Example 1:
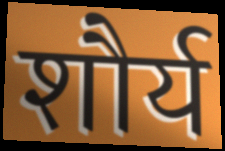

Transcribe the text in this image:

शौर्य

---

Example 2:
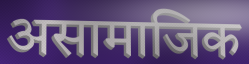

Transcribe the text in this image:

असामाजिक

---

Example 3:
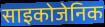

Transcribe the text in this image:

साइकोजेनिक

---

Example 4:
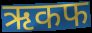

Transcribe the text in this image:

ऋकफ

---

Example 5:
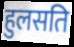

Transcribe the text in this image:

हुलसति